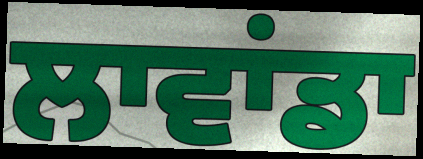
ਲਾਵਾਂਡਾ